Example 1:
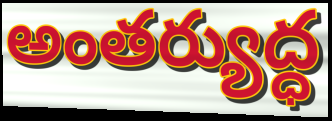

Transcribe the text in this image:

అంతర్యుద్ధ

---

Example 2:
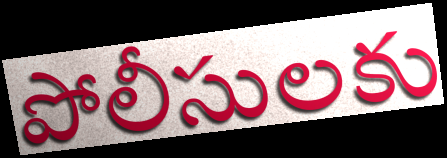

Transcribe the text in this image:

పోలీసులకు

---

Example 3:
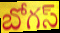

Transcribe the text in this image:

బోగస్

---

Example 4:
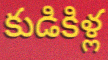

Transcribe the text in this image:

కుడికిళ్ల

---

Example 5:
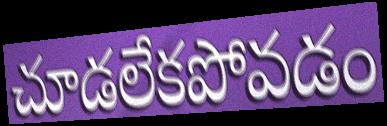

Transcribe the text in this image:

చూడలేకపోవడం